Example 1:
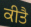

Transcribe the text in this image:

ਕੀਤੈ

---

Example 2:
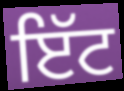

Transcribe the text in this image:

ਇੱਟ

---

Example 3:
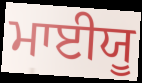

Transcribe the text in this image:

ਮਾਈਯੂ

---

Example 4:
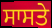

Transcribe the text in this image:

ਸਾਸਤੇ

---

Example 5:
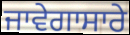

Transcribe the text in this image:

ਜਾਵੇਗਾਸਾਰੇ